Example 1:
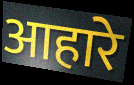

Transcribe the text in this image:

आहारे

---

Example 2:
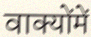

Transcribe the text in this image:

वाक्योंमें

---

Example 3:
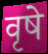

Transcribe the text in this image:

वृषे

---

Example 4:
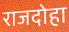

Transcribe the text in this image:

राजदोहा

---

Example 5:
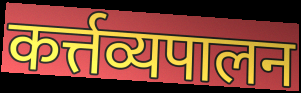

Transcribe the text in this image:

कर्त्तव्यपालन